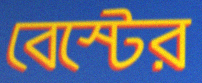
বেস্টের